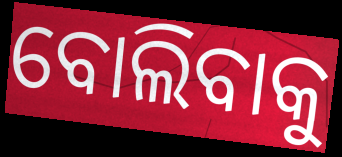
ବୋଲିବାକୁ